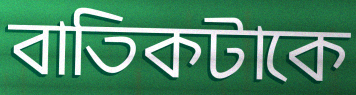
বাতিকটাকে